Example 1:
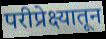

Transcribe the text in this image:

परीप्रेक्ष्यातून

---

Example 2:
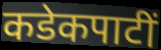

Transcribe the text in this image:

कडेकपाटीं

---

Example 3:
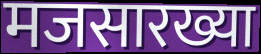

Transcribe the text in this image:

मजसारख्या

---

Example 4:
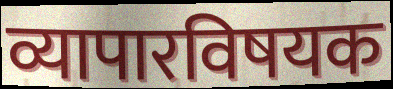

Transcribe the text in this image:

व्यापारविषयक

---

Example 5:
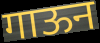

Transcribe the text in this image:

गाऊन